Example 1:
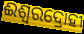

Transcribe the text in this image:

ଈଶ୍ଵରଦ୍ରୋହୀ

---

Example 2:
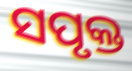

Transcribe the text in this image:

ସପୃକ୍ତ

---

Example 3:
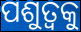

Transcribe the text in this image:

ପଶୁତ୍ୱକୁ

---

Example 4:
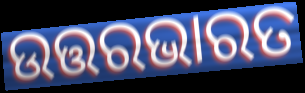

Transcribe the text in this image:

ଉତ୍ତରଭାରତ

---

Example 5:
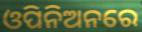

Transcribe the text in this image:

ଓପିନିଅନରେ